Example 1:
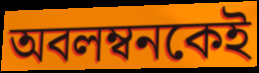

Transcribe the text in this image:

অবলম্বনকেই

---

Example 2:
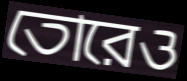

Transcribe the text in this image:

তোরেও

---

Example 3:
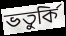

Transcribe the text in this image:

ভতুর্কি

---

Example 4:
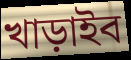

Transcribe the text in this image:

খাড়াইব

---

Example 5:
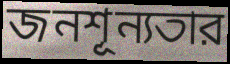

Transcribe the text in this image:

জনশূন্যতার